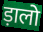
ड़ालो